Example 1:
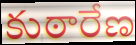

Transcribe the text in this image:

కుఠారేణ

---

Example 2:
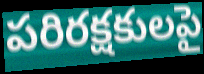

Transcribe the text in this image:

పరిరక్షకులపై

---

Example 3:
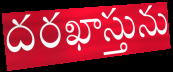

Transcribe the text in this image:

దరఖాస్తును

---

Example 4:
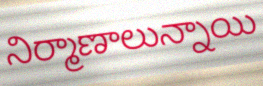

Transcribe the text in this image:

నిర్మాణాలున్నాయి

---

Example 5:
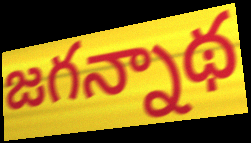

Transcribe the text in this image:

జగన్నాథ